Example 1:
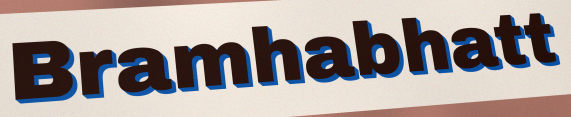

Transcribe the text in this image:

Bramhabhatt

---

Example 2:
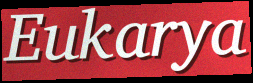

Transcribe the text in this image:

Eukarya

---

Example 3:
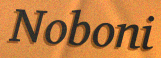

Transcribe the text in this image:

Noboni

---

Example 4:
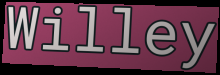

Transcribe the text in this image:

Willey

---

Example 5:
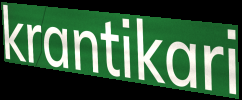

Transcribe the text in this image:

krantikari